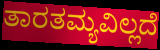
ತಾರತಮ್ಯವಿಲ್ಲದೆ